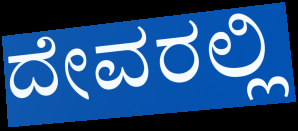
ದೇವರಲ್ಲಿ